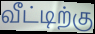
வீட்டிற்கு